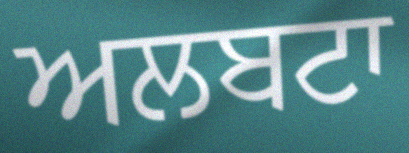
ਅਲਬਟਾ